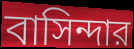
বাসিন্দার